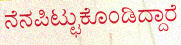
ನೆನಪಿಟ್ಟುಕೊಂಡಿದ್ದಾರೆ